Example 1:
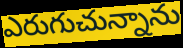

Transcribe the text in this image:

ఎరుగుచున్నాను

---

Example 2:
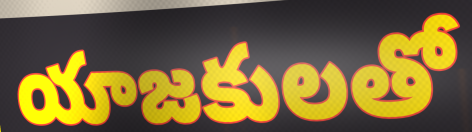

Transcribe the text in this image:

యాజకులతో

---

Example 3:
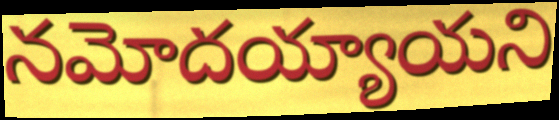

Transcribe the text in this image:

నమోదయ్యాయని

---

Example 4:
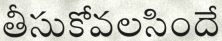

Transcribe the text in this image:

తీసుకోవలసిందే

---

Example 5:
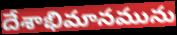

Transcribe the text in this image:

దేశాభిమానమును